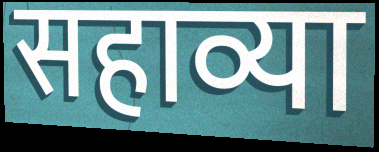
सहाव्या